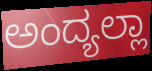
ಅಂದ್ಯಲ್ಲಾ